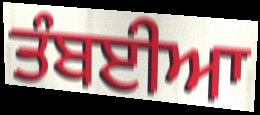
ਤੰਬਈਆ